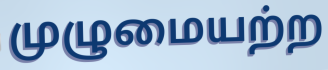
முழுமையற்ற